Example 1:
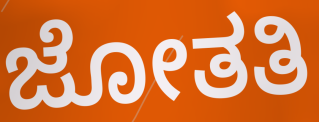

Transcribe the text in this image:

ಜೋತತಿ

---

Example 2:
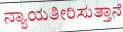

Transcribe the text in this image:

ನ್ಯಾಯತೀರಿಸುತ್ತಾನೆ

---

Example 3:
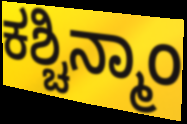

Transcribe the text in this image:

ಕಶ್ಚಿನ್ಮಾಂ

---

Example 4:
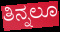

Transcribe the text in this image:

ತಿನ್ನಲೂ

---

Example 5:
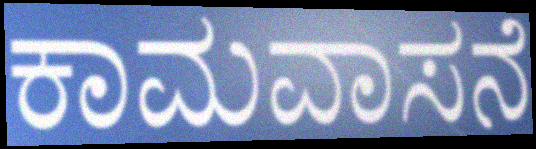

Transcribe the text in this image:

ಕಾಮವಾಸನೆ